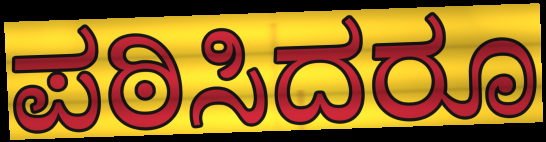
ಪಠಿಸಿದರೂ